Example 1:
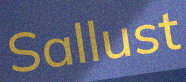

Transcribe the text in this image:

Sallust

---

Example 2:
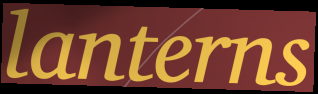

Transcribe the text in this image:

lanterns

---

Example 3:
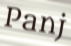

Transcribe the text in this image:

Panj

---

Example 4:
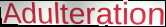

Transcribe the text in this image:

Adulteration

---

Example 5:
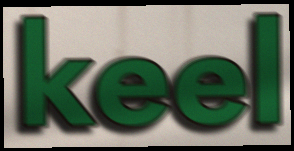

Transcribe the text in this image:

keel